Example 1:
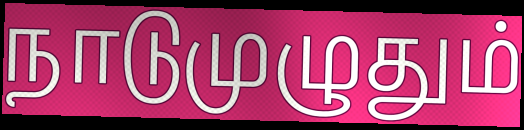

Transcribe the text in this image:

நாடுமுழுதும்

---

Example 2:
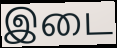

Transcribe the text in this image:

இடை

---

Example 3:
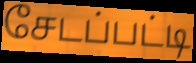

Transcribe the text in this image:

சேடப்பட்டி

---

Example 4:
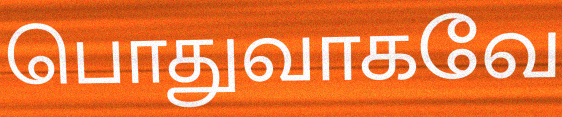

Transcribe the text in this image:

பொதுவாகவே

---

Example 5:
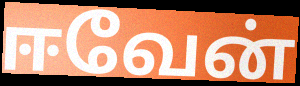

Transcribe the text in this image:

ஈவேன்